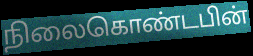
நிலைகொண்டபின்